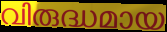
വിരുദ്ധമായ